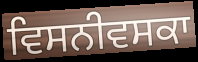
ਵਿਸਨੀਵਸਕਾ